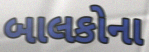
બાલકોના